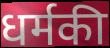
धर्मकी